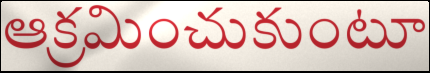
ఆక్రమించుకుంటూ